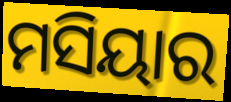
ମସିୟାର